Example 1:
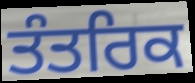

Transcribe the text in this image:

ਤੰਤਰਿਕ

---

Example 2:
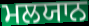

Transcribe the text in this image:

ਮਲਯਾਨ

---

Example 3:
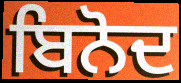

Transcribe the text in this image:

ਬਿਨੋਦ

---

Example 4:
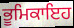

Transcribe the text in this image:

ਭੂਮਿਕਾਇਹ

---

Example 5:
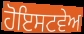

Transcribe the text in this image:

ਹੋਇਸਟਵੇਅ